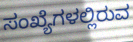
ಸಂಖ್ಯೆಗಳಲ್ಲಿರುವ